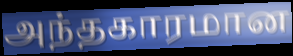
அந்தகாரமான